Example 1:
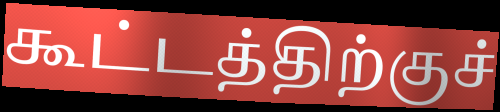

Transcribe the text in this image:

கூட்டத்திற்குச்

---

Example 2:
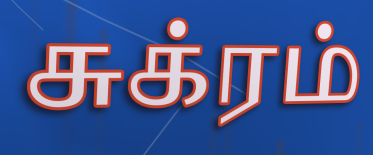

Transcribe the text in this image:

சுக்ரம்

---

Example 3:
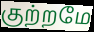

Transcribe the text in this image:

குற்றமே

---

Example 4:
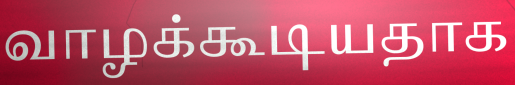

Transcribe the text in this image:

வாழக்கூடியதாக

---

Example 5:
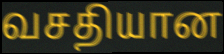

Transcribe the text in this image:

வசதியான